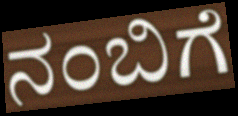
ನಂಬಿಗೆ